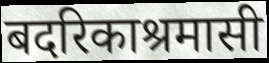
बदरिकाश्रमासी